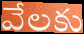
వేలకు